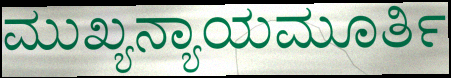
ಮುಖ್ಯನ್ಯಾಯಮೂರ್ತಿ